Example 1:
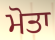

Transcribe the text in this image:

ਮੋਤਾ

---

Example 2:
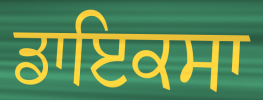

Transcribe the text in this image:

ਡਾਇਕਸਾ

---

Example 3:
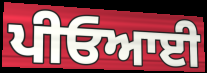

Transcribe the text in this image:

ਪੀਓਆਈ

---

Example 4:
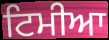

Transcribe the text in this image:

ਟਿਮੀਆ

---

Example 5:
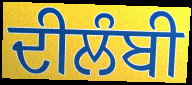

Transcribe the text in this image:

ਦੀਲੰਬੀ